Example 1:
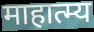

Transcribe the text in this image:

माहात्म्य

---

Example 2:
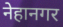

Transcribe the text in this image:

नेहानगर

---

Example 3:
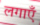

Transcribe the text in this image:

लगाएँ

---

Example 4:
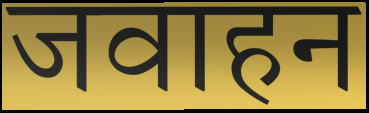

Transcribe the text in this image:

जवाहन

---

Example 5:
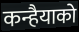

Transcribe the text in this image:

कन्हैयाको